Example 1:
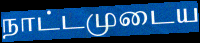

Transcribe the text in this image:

நாட்டமுடைய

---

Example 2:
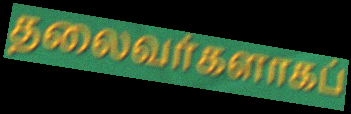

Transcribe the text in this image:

தலைவர்களாகப்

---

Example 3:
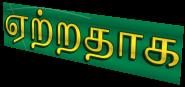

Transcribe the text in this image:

ஏற்றதாக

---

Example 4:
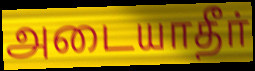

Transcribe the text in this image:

அடையாதீர்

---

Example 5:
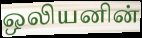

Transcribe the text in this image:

ஒலியனின்